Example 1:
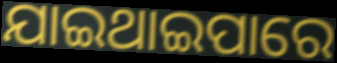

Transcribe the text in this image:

ଯାଇଥାଇପାରେ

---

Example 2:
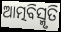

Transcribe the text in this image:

ଆତ୍ମବିସ୍ମୃତି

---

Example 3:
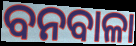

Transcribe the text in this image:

ବନବାଳା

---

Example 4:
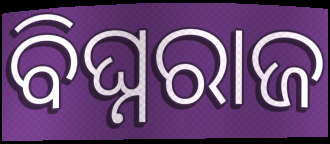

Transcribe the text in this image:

ବିଘ୍ନରାଜ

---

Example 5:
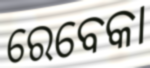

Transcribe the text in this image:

ରେବେକା